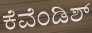
ಕೆವೆಂಡಿಶ್